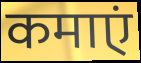
कमाएं